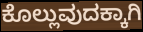
ಕೊಲ್ಲುವುದಕ್ಕಾಗಿ